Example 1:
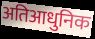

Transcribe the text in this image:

अतिआधुनिक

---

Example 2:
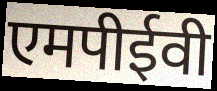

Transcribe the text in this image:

एमपीईवी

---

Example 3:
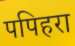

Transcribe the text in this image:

पपिहरा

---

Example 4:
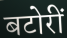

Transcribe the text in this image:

बटोरीं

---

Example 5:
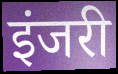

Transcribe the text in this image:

इंजरी